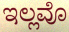
ಇಲ್ಲವೊ